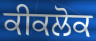
ਕੀਕਲੋਕ